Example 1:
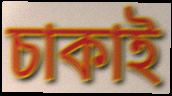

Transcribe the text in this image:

চাকাই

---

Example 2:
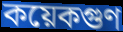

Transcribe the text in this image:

কয়েকগুণ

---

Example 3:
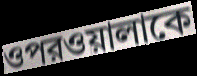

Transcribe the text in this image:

ওপরওয়ালাকে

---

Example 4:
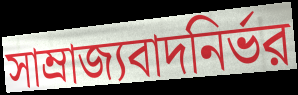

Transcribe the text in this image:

সাম্রাজ্যবাদনির্ভর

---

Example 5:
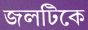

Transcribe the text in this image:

জলটিকে